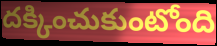
దక్కించుకుంటోంది